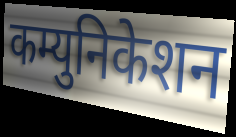
कम्युनिकेशन